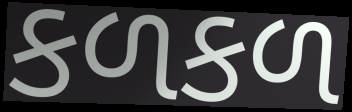
કળકળ